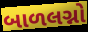
બાળલગ્નો